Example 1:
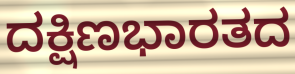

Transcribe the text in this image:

ದಕ್ಷಿಣಭಾರತದ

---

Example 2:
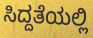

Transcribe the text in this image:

ಸಿದ್ದತೆಯಲ್ಲಿ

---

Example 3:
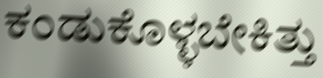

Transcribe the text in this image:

ಕಂಡುಕೊಳ್ಳಬೇಕಿತ್ತು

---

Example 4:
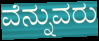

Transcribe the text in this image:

ವೆನ್ನುವರು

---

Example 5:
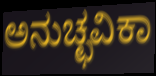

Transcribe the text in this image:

ಅನುಚ್ಛವಿಕಾ